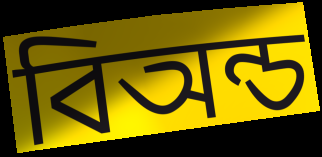
বিঅন্ড